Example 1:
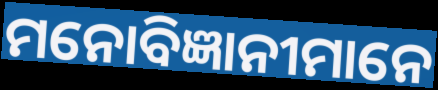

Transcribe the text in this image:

ମନୋବିଜ୍ଞାନୀମାନେ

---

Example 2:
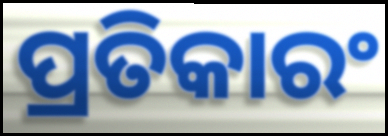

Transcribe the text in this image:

ପ୍ରତିକାରଂ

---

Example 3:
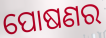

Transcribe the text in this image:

ପୋଷଣର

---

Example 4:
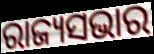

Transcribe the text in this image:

ରାଜ୍ୟସଭାର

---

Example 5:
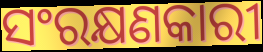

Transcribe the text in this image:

ସଂରକ୍ଷଣକାରୀ